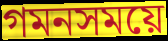
গমনসময়ে